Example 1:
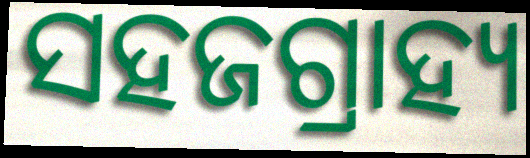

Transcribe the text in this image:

ସହଜଗ୍ରାହ୍ୟ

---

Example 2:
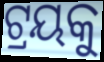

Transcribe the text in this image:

ଟ୍ରୟକୁ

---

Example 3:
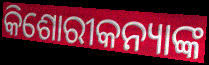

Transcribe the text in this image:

କିଶୋରୀକନ୍ୟାଙ୍କ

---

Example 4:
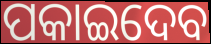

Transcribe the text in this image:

ପକାଇଦେବ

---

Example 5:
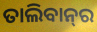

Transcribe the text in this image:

ତାଲିବାନ୍‌ର